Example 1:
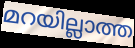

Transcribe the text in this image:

മറയില്ലാത്ത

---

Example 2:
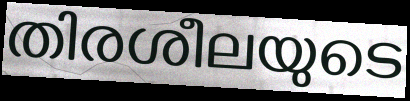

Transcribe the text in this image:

തിരശീലയുടെ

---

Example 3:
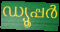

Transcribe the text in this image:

ഡ്യൂപ്പർ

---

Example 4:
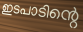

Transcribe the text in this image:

ഇടപാടിന്റെ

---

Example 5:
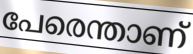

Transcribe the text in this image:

പേരെന്താണ്